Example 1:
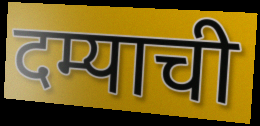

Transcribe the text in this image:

दम्याची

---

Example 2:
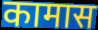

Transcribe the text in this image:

कामास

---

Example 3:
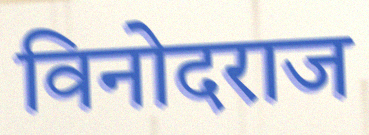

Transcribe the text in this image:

विनोदराज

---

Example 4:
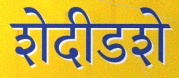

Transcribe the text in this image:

शेदीडशे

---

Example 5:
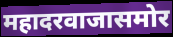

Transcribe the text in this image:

महादरवाजासमोर